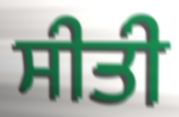
ਸੀਤੀ